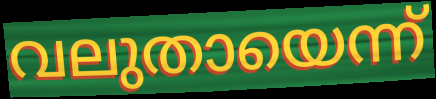
വലുതായെന്ന്